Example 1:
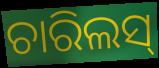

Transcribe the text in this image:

ଚାରିଲସ୍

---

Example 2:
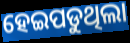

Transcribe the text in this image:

ହେଇପଡୁଥିଲା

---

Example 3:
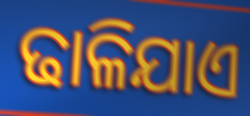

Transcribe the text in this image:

ଢାଳିଯାଏ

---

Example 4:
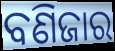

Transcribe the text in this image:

ବଣିଜାର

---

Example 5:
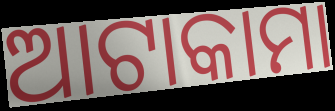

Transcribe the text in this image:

ଆଟାକାମା